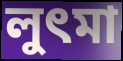
লুৎমা